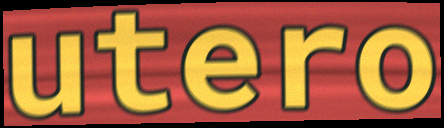
utero